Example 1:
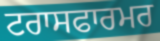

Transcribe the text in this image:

ਟਰਾਸਫਾਰਮਰ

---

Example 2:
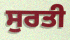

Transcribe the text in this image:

ਸੁਰਤੀ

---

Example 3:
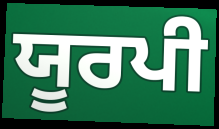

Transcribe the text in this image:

ਯੂਰਪੀ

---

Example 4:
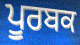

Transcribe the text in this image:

ਪੂਰਬਕ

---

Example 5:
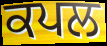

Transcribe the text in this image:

ਕਪਲ